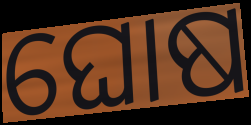
ଘୋଷ